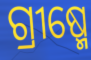
ଗ୍ରୀଷ୍ମେ